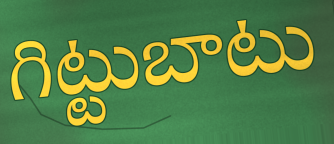
గిట్టుబాటు